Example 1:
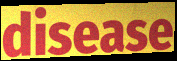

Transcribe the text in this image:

disease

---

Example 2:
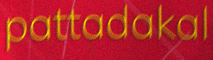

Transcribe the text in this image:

pattadakal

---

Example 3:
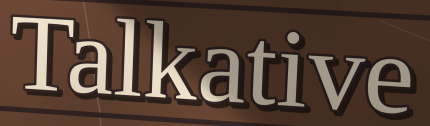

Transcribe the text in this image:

Talkative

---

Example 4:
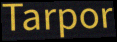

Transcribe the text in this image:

Tarpor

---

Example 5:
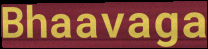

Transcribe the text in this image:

Bhaavaga